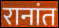
रानांत